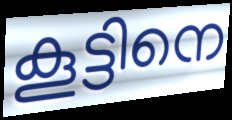
കൂട്ടിനെ